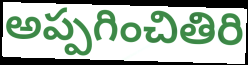
అప్పగించితిరి